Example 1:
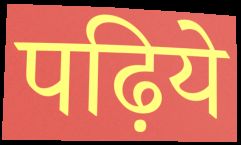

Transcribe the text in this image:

पढ़िये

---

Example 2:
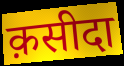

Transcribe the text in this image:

क़सीदा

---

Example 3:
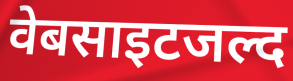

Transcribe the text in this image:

वेबसाइटजल्द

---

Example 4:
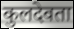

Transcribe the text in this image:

कुलदेवता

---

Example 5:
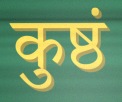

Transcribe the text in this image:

कुष्ठं